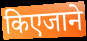
किएजाने